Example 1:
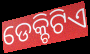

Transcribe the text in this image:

ଡେକ୍ଚିଟିଏ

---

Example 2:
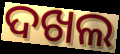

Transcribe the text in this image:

ଦଖଲ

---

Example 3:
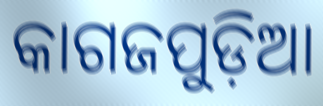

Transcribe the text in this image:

କାଗଜପୁଡ଼ିଆ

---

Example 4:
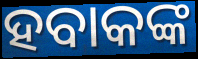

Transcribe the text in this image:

ହବାକଙ୍କ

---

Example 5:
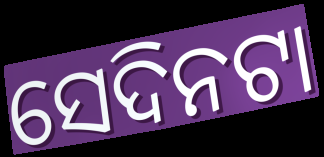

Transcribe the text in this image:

ସେଦିନଟା